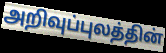
அறிவுப்புலத்தின்